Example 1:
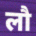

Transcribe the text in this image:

लौ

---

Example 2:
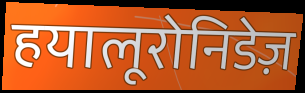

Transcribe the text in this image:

हयालूरोनिडेज़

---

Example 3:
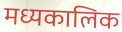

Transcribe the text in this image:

मध्यकालिक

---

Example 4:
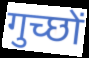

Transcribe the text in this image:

गुच्छों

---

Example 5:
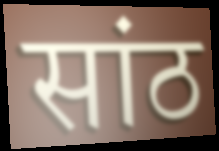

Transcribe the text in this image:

सांठ